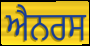
ਐਨਰਸ